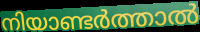
നിയാണ്ടർത്താൽ